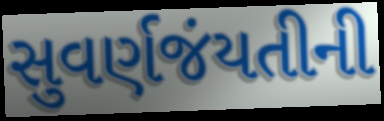
સુવર્ણજંયતીની